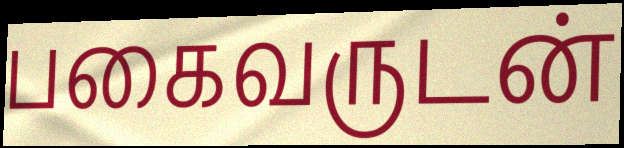
பகைவருடன்